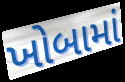
ખોબામાં